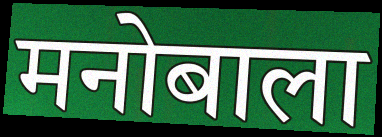
मनोबाला